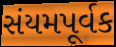
સંયમપૂર્વક